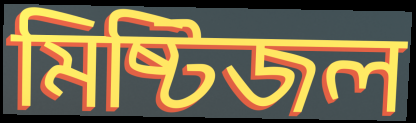
মিষ্টিজল